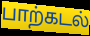
பாற்கடல்